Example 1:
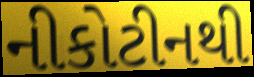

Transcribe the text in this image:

નીકોટીનથી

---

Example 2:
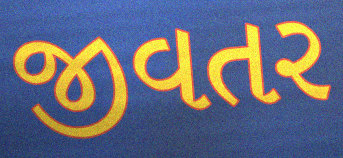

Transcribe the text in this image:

જીવતર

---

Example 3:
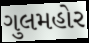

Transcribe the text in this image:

ગુલમહોર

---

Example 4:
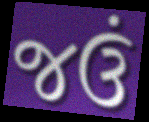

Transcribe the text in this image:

જઉં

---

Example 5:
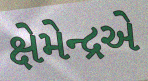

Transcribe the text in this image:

ક્ષેમેન્દ્રએ